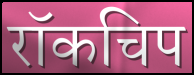
रॉकचिप